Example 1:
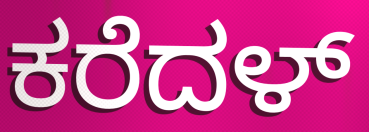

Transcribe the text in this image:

ಕರೆದಳ್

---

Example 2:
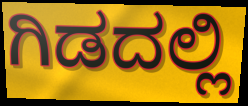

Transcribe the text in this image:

ಗಿಡದಲ್ಲಿ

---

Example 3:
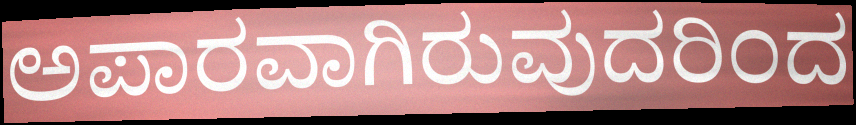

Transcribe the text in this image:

ಅಪಾರವಾಗಿರುವುದರಿಂದ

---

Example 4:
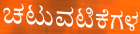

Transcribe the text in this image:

ಚಟುವಟಿಕೆಗಳ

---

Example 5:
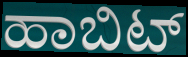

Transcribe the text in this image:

ಹಾಬಿಟ್